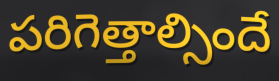
పరిగెత్తాల్సిందే